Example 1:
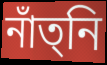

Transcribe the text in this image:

নাঁত্‌নি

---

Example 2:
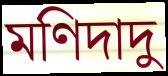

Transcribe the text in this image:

মণিদাদু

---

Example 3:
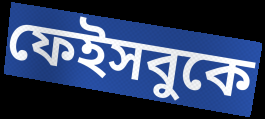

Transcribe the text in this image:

ফেইসবুকে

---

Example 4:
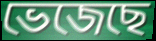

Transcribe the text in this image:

ভেজেছে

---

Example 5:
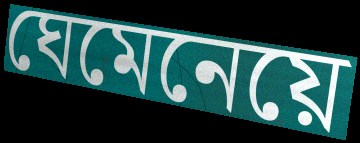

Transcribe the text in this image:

ঘেমেনেয়ে